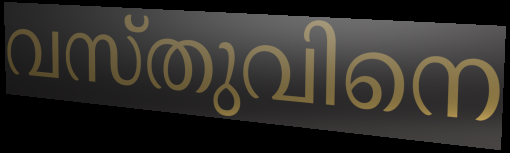
വസ്തുവിനെ